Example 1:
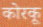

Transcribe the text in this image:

कोरकू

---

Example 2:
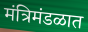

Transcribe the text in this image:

मंत्रिमंडळात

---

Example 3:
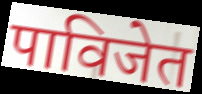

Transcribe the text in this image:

पाविजेत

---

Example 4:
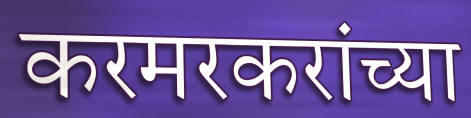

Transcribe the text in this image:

करमरकरांच्या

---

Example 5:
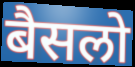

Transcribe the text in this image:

बैसलो